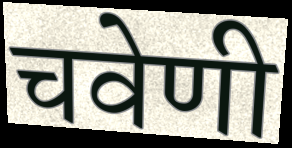
चवेणी